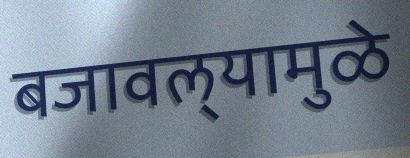
बजावल्यामुळे